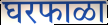
घरफाळा